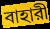
বাহারী